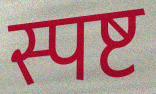
स्पष्ट